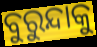
ବୁରୁନ୍ଦାକୁ